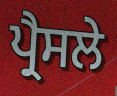
ਪ੍ਰੈਸਲੇ